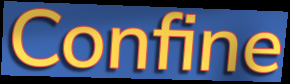
Confine